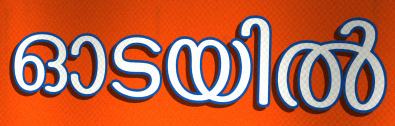
ഓടയിൽ